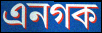
এনগক